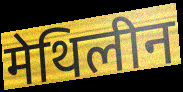
मेथिलीन